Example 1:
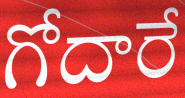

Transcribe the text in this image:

గోదారే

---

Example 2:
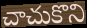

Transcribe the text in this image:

చాచుకొని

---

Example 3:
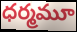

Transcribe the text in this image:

ధర్మమూ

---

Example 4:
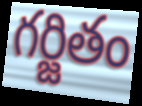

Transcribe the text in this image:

గర్జితం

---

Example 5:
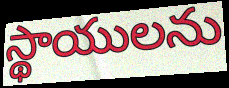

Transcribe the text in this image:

స్థాయులను